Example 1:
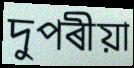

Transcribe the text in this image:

দুপৰীয়া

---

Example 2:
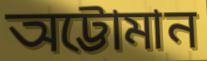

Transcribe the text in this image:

অট্টোমান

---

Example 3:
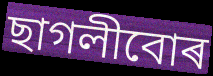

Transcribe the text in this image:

ছাগলীবোৰ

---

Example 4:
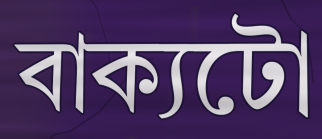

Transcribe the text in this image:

বাক্য়টো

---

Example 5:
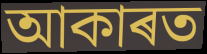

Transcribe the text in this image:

আকাৰত